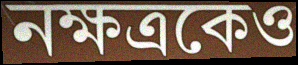
নক্ষত্রকেও